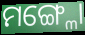
ମଙ୍ଗ୍ଳୋ